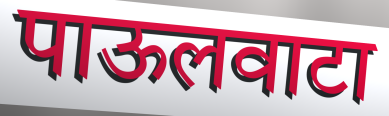
पाऊलवाटा